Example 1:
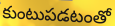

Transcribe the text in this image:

కుంటుపడటంతో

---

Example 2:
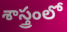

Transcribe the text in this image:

శాస్త్రంలో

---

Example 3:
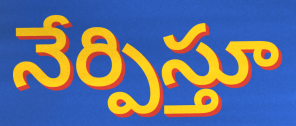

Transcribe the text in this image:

నేర్పిస్తూ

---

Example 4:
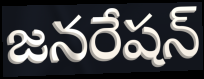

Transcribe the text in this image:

జనరేషన్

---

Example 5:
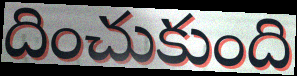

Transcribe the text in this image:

దించుకుంది